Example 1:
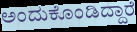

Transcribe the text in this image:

ಅಂದುಕೊಂಡಿದ್ದಾರೆ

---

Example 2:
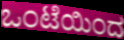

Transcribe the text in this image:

ಒಂಟೆಯಿಂದ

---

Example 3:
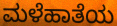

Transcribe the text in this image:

ಮಳೆಹಾತೆಯ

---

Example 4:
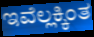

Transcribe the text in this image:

ಇವೆಲ್ಲಕ್ಕಿಂತ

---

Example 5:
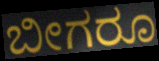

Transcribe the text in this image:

ಬೀಗರೂ